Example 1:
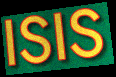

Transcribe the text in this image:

ISIS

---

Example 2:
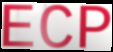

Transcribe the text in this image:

ECP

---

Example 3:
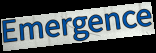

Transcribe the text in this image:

Emergence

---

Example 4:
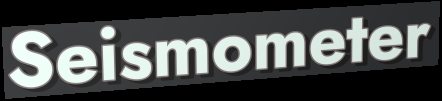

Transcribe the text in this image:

Seismometer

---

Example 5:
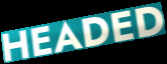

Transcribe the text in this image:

HEADED